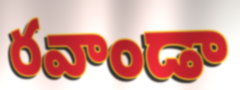
రవాండా